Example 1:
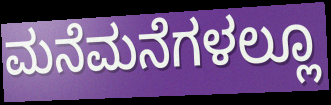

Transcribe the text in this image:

ಮನೆಮನೆಗಳಲ್ಲೂ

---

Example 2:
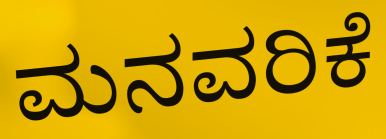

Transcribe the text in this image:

ಮನವರಿಕೆ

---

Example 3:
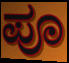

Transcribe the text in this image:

ಪೂ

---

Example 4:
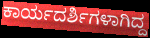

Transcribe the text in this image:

ಕಾರ್ಯದರ್ಶಿಗಳಾಗಿದ್ದ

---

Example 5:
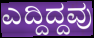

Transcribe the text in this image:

ಎದ್ದಿದ್ದವು